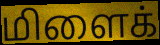
மிளைக்